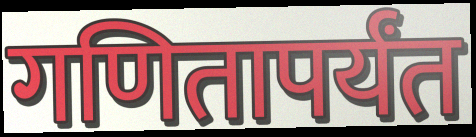
गणितापर्यंत